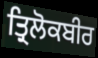
ਤ੍ਰਿਲੋਕਬੀਰ